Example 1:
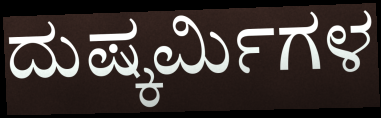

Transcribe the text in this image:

ದುಷ್ಕರ್ಮಿಗಳ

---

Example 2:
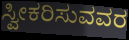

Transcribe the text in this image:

ಸ್ವೀಕರಿಸುವವರ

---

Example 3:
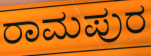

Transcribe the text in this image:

ರಾಮಪುರ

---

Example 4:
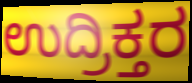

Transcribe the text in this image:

ಉದ್ರಿಕ್ತರ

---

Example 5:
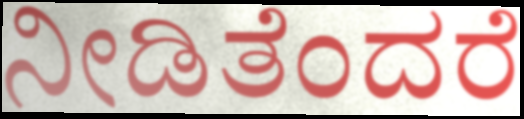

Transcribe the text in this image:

ನೀಡಿತೆಂದರೆ